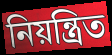
নিয়ন্ত্ৰিত